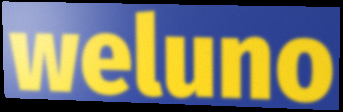
weluno